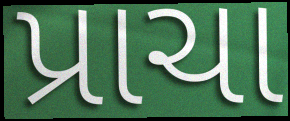
પ્રાચા